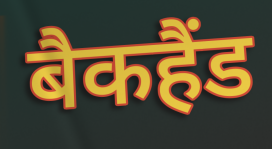
बैकहैंड